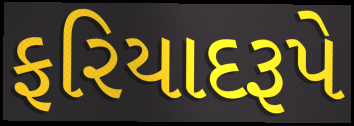
ફરિયાદરૂપે